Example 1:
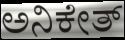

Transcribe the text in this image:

ಅನಿಕೇತ್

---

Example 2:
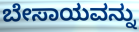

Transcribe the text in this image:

ಬೇಸಾಯವನ್ನು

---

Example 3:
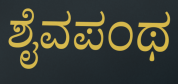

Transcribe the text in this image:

ಶೈವಪಂಥ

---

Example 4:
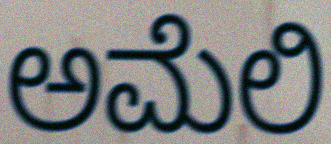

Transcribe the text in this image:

ಅಮೆಲಿ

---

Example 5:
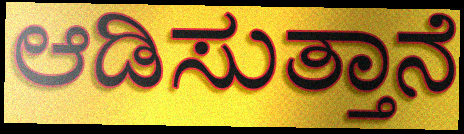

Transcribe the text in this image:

ಆಡಿಸುತ್ತಾನೆ